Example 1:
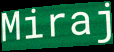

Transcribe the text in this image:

Miraj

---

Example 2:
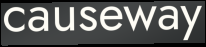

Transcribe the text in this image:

causeway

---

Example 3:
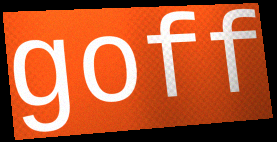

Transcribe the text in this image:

goff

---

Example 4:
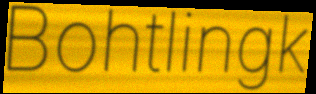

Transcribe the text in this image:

Bohtlingk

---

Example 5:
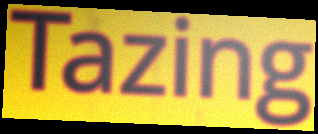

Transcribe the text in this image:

Tazing